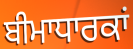
ਬੀਮਾਧਾਰਕਾਂ